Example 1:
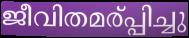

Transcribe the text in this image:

ജീവിതമര്പ്പിച്ചു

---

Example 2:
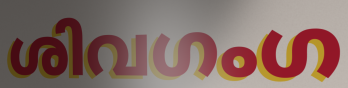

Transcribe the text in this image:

ശിവഗംഗ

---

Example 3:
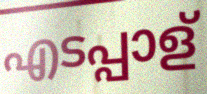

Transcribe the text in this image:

എടപ്പാള്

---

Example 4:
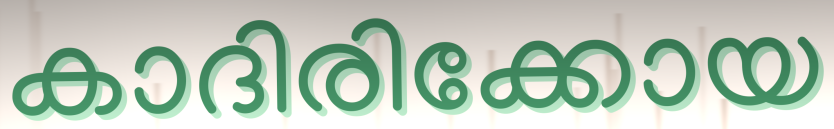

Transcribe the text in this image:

കാദിരിക്കോയ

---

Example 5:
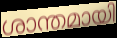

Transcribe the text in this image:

ശാന്തമായി